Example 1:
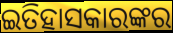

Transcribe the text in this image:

ଇତିହାସକାରଙ୍କର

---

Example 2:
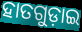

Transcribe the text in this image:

ହାତଗୁଡ଼ାଇ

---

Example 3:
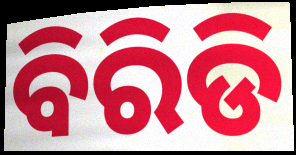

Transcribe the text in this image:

ବିରିଡି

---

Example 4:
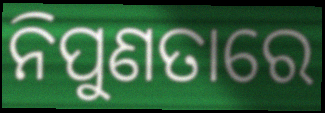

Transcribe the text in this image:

ନିପୁଣତାରେ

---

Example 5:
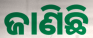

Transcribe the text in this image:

ଜାଣିଛି